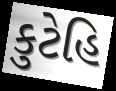
કુટેહિ